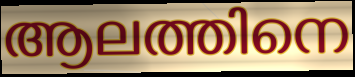
ആലത്തിനെ